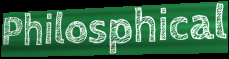
Philosphical